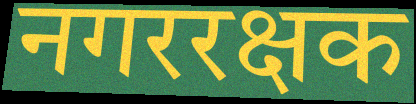
नगररक्षक